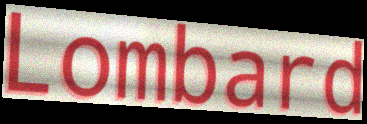
Lombard